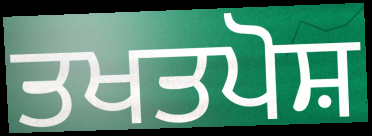
ਤਖਤਪੋਸ਼